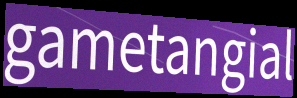
gametangial